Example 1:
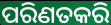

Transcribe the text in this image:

ପରିଣତକରି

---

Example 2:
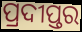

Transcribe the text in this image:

ପ୍ରଦୀପ୍ତର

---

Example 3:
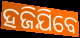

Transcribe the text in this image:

ହଜିଯିବେ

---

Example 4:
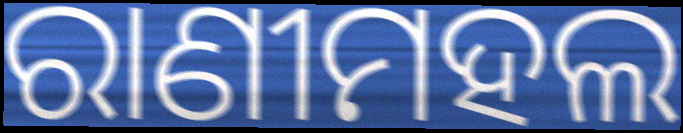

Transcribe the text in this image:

ରାଣୀମହଲ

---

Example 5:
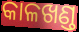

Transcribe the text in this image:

କାଳଖଣ୍ଡ